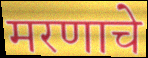
मरणाचे